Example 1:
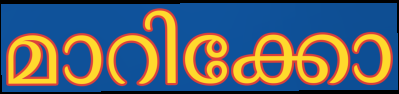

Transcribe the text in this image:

മാറിക്കോ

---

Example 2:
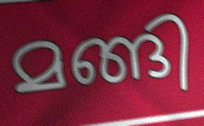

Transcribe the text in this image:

മങ്ങി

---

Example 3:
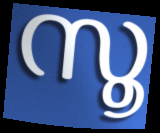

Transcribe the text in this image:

സൂ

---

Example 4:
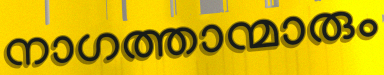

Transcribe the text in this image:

നാഗത്താന്മാരും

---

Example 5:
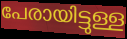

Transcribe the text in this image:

പേരായിട്ടുള്ള